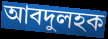
আবদুলহক